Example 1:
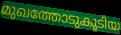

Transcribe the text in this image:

മുഖത്തോടുകൂടിയ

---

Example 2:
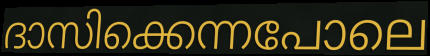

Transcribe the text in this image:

ദാസിക്കെന്നപോലെ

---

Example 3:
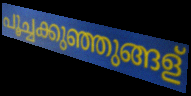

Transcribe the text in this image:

പൂച്ചക്കുഞ്ഞുങ്ങള്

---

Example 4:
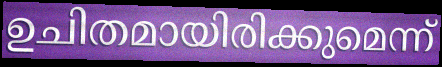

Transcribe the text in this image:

ഉചിതമായിരിക്കുമെന്ന്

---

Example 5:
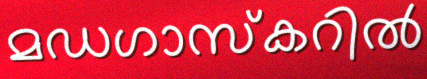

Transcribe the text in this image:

മഡഗാസ്കറിൽ